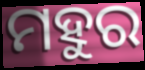
ମହୁର